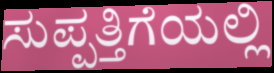
ಸುಪ್ಪತ್ತಿಗೆಯಲ್ಲಿ